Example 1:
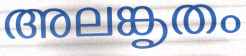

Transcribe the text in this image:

അലങ്കൃതം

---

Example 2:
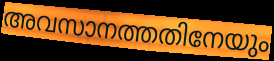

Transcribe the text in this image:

അവസാനത്തതിനേയും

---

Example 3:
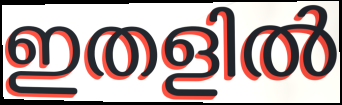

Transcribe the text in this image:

ഇതളിൽ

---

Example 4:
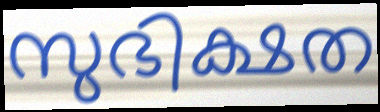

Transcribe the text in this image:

സുഭിക്ഷത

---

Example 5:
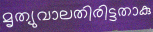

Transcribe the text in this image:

മൃത്യുവാലതിരിട്ടതാകു